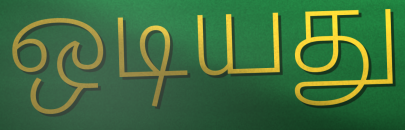
ஒடியது